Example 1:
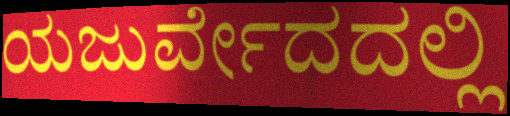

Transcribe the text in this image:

ಯಜುರ್ವೇದದಲ್ಲಿ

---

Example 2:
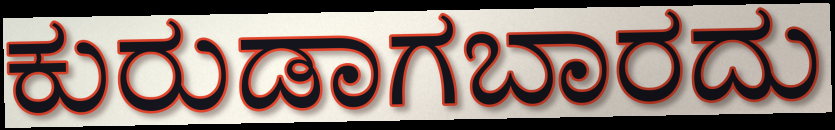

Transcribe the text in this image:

ಕುರುಡಾಗಬಾರದು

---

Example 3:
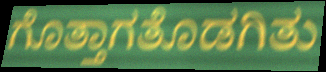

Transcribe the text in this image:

ಗೊತ್ತಾಗತೊಡಗಿತು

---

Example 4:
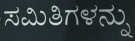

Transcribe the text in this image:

ಸಮಿತಿಗಳನ್ನು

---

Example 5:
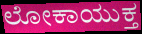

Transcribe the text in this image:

ಲೋಕಾಯುಕ್ತ